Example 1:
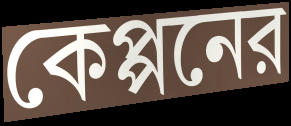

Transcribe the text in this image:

কেপ্পনের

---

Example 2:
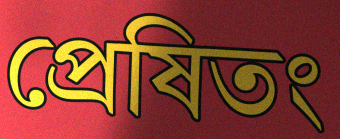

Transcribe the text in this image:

প্রেষিতং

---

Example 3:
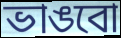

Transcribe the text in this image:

ভাঙবো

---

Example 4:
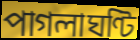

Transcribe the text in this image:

পাগলাঘণ্টি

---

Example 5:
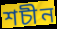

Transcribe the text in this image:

শচীন